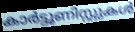
കാർട്ടൂണിസ്റ്റുകൾ